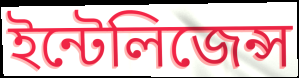
ইন্টেলিজেন্স